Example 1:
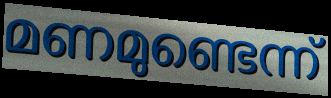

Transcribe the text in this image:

മണമുണ്ടെന്ന്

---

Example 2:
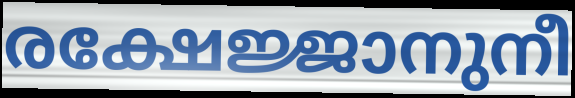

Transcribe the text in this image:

രക്ഷേജ്ജാനുനീ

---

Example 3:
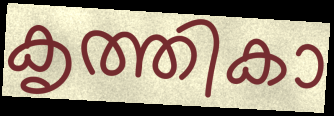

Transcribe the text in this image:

കൃത്തികാ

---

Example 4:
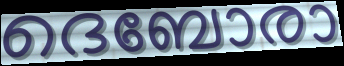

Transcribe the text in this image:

ദെബോരാ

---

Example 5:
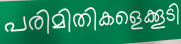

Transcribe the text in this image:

പരിമിതികളെക്കൂടി